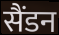
सैंडन